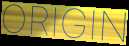
ORIGIN